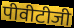
पीवीटीजी